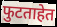
फुटताहेत